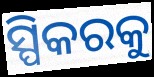
ସ୍ପିକରକୁ